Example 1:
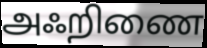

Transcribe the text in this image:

அஃறிணை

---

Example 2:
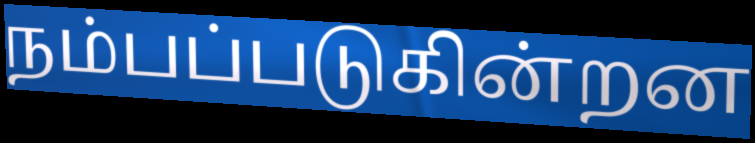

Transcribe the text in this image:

நம்பப்படுகின்றன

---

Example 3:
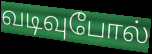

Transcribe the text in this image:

வடிவுபோல்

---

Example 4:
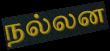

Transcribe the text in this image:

நல்லன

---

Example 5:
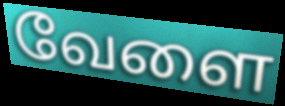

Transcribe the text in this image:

வேளை